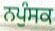
ਨਪੁੰਸਕ